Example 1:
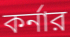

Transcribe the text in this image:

কর্নার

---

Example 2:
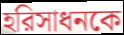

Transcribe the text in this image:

হরিসাধনকে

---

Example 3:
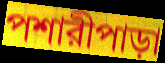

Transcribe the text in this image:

পশারীপাড়া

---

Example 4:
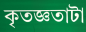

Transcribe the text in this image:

কৃতজ্ঞতাটা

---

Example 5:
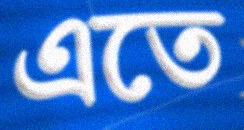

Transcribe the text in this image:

এতে